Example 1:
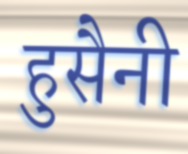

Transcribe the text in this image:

हुसैनी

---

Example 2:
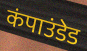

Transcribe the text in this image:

कंपाउंडेड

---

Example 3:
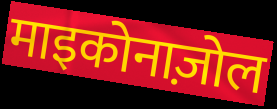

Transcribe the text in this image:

माइकोनाज़ोल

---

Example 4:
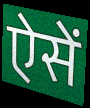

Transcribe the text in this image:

ऐसें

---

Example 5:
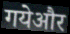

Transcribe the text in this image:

गयेऔर